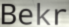
Bekr